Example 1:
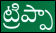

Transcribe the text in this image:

ట్రిప్పా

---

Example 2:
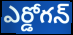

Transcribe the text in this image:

ఎర్డోగన్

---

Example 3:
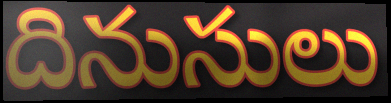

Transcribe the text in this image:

దినుసులు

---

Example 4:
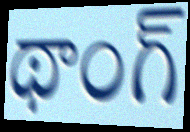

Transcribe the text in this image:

థాంగ్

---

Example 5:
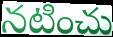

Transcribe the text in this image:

నటించు